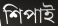
শিপাই